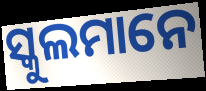
ସ୍କୁଲମାନେ